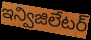
ఇన్విజిలేటర్